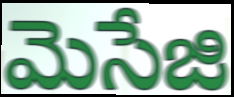
మెసేజి